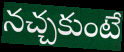
నచ్చకుంటే